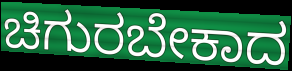
ಚಿಗುರಬೇಕಾದ